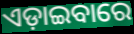
ଏଡ଼ାଇବାରେ